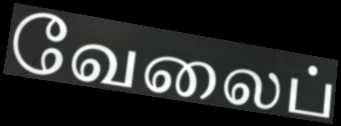
வேலைப்